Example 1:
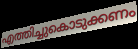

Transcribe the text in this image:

എത്തിച്ചുകൊടുക്കണം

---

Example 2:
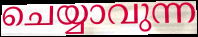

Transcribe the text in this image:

ചെയ്യാവുന്ന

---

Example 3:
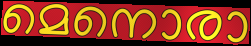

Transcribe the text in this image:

മെനൊരാ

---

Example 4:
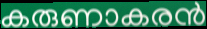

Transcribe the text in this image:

കരുണാകരൻ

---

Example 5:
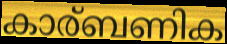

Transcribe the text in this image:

കാര്ബണിക